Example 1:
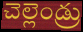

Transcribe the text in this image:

చెల్లెండ్రు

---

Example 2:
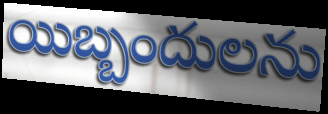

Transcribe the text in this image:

యిబ్బందులను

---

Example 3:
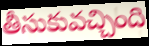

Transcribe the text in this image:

తీసుకువచ్చింది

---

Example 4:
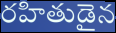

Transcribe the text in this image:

రహితుడైన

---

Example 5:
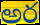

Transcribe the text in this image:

అర